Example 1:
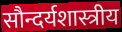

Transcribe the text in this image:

सौन्दर्यशास्त्रीय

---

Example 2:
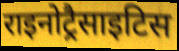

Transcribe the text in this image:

राइनोट्रैसाइटिस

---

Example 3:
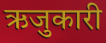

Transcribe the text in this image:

ऋजुकारी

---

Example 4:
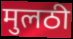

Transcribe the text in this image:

मुलठी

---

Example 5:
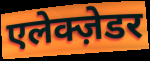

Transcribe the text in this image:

एलेक्ज़ेडर